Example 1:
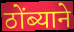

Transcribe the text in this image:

ठोंब्याने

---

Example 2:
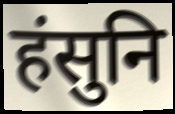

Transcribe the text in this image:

हंसुनि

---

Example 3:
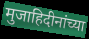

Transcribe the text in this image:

मुजाहिदीनांच्या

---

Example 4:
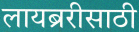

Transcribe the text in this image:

लायब्ररीसाठी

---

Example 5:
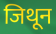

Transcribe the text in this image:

जिथून